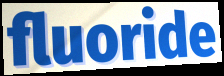
fluoride